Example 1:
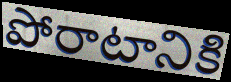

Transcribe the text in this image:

పోరాటానికి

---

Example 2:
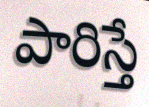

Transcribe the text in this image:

పారిస్తే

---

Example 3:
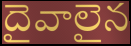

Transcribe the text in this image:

దైవాలైన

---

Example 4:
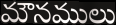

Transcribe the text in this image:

మౌనములు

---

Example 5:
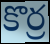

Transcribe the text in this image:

కొర్ర